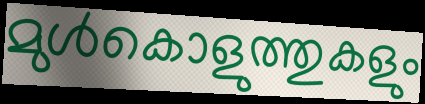
മുൾകൊളുത്തുകളും